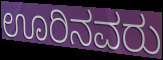
ಊರಿನವರು